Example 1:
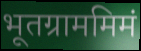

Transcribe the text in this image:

भूतग्राममिमं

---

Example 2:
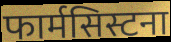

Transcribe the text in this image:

फार्मसिस्टना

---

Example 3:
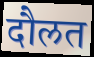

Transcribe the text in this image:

दौलत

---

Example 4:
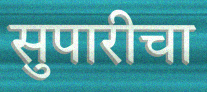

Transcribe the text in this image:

सुपारीचा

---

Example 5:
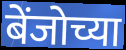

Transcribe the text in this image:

बेंजोच्या